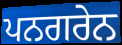
ਪਨਗਰੇਨ